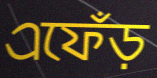
এফেঁড়